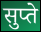
सुप्ते